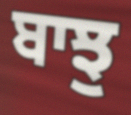
ਬਾਝੁ